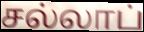
சல்லாப்